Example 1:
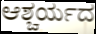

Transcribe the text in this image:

ಆಶ್ಚರ್ಯದ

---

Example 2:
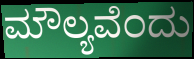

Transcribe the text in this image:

ಮೌಲ್ಯವೆಂದು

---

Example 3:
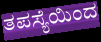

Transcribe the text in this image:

ತಪಸ್ಯೆಯಿಂದ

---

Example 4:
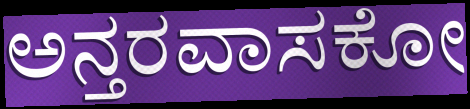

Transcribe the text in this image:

ಅನ್ತರವಾಸಕೋ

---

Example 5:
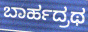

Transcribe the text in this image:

ಬಾರ್ಹದ್ರಥ